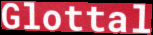
Glottal